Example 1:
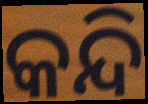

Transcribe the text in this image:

କନ୍ଦି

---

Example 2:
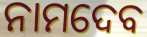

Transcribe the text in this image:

ନାମଦେବ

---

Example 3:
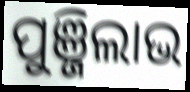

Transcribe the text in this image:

ପୁଞ୍ଜିଲାଭ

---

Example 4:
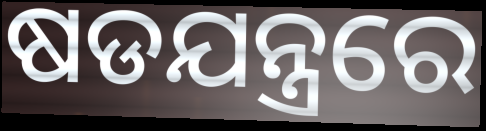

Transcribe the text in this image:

ଷଡଯନ୍ତ୍ରରେ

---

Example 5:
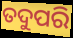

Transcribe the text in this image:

ତଦୁପରି